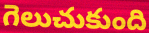
గెలుచుకుంది